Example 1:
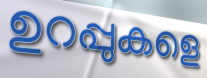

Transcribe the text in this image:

ഉറപ്പുകളെ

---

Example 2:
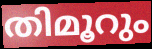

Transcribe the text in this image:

തിമൂറും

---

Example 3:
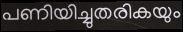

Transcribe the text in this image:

പണിയിച്ചുതരികയും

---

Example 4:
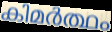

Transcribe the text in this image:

കിമർത്ഥം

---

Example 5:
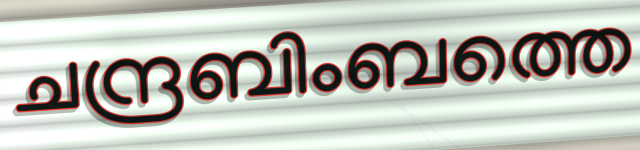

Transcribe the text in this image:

ചന്ദ്രബിംബത്തെ